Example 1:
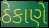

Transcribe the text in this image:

ઠેકાણે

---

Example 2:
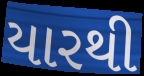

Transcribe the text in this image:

યારથી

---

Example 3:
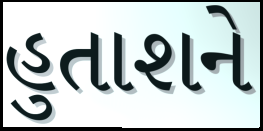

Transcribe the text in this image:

હુતાશને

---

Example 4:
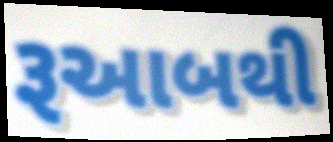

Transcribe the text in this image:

રૂઆબથી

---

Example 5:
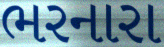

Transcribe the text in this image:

ભરનારા